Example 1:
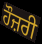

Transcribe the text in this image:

ਹੌਜ਼ਰੀ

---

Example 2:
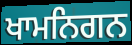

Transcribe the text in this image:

ਖਾਮਨਿਗਨ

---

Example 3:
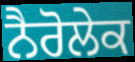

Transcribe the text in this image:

ਨੈਰੋਲੇਕ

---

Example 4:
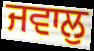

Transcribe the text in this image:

ਜਵਾਲੁ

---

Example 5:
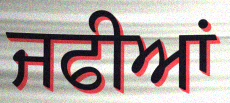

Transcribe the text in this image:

ਜਫੀਆਂ